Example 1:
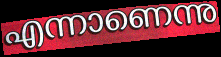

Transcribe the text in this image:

എന്നാണെന്നു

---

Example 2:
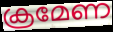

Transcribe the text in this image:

ക്രമേണ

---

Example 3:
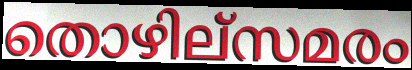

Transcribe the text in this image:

തൊഴില്സമരം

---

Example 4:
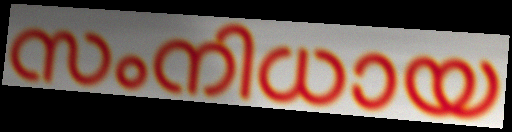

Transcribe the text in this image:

സംനിധായ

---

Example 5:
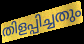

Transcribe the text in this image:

തിളപ്പിച്ചതും